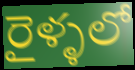
రైళ్ళలో